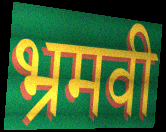
भ्रमवी